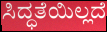
ಸಿದ್ಧತೆಯಿಲ್ಲದೆ